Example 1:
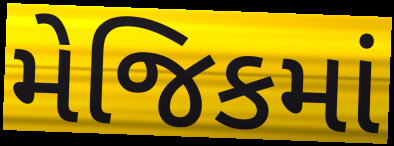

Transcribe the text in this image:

મેજિકમાં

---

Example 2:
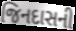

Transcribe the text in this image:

જિનદાસની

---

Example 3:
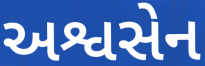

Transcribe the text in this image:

અશ્વસેન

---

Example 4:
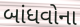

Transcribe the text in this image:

બાંધવોના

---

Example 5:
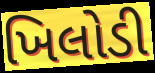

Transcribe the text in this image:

ખિલોડી